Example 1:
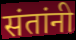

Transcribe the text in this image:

संतांनी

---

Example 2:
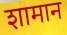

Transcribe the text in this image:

शामान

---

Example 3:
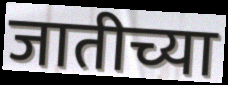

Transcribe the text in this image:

जातीच्या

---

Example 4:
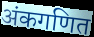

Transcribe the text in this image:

अंकगणित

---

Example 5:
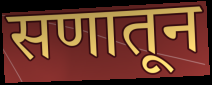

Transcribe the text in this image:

सणातून